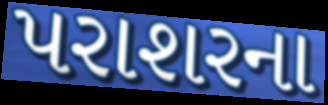
પરાશરના